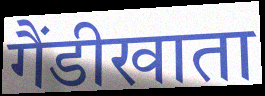
गैंडीखाता